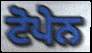
ਟੋਪੇਨ